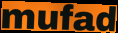
mufad